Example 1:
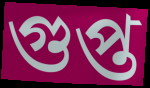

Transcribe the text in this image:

গুপ্ত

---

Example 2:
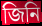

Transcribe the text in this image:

জিনি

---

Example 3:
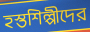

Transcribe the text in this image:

হস্তশিল্পীদের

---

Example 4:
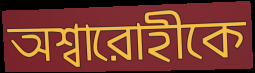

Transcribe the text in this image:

অশ্বারোহীকে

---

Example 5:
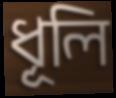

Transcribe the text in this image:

ধূলি